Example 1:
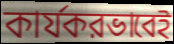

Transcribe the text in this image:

কার্যকরভাবেই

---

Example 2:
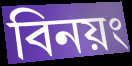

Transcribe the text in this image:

বিনয়ং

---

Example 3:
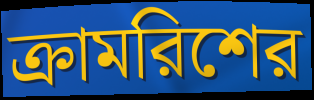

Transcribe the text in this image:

ক্রামরিশের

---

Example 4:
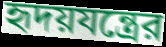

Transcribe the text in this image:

হৃদয়যন্ত্রের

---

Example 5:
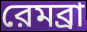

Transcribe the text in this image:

রেমব্রা